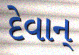
દેવાન્